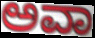
ಅವಾ